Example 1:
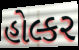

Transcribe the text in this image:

હોલ્કર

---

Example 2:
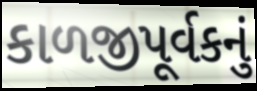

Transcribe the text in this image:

કાળજીપૂર્વકનું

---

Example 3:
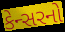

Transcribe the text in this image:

કેન્સરનો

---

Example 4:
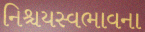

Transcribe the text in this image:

નિશ્ચયસ્વભાવના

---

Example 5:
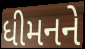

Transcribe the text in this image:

ધીમનને